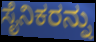
ಸೈನಿಕರನ್ನು